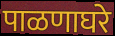
पाळणाघरे